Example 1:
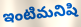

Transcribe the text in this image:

ఇంటిమనిషి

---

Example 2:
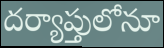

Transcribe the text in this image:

దర్యాప్తులోనూ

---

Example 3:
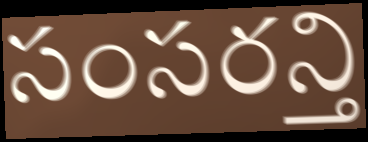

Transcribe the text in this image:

సంసరన్తి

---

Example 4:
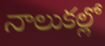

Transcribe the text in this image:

నాలుకల్లో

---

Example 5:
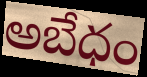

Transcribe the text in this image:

అబేధం